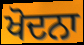
ਖੋਦਨਾ